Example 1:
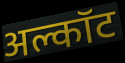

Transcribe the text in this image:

अल्कॉट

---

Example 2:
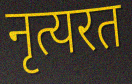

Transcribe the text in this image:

नृत्यरत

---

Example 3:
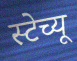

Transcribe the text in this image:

स्टेच्यू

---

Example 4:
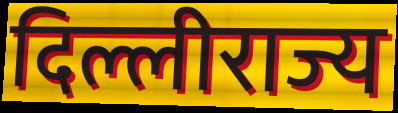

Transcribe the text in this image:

दिल्लीराज्य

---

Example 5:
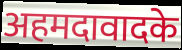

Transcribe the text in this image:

अहमदावादके